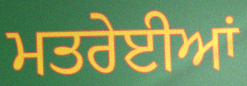
ਮਤਰੇਈਆਂ